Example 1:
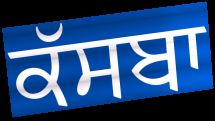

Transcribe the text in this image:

ਕੱਸਬਾ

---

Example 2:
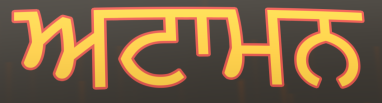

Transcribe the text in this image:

ਅਟਾਮਨ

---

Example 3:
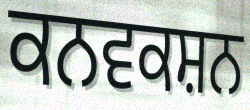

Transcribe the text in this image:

ਕਨਵਕਸ਼ਨ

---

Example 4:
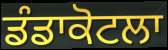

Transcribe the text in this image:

ਡੰਡਾਕੋਟਲਾ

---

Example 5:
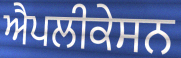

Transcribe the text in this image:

ਐਪਲੀਕੇਸਨ